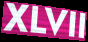
XLVII